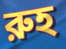
রুহ